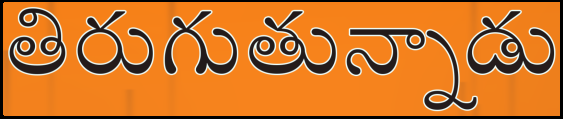
తిరుగుతున్నాడు